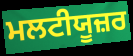
ਮਲਟੀਯੂਜ਼ਰ